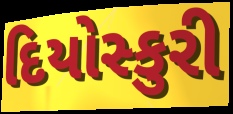
દિયોસ્કુરી